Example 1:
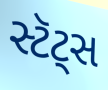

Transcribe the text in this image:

સ્ટૅટ્સ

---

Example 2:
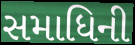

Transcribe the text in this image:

સમાધિની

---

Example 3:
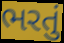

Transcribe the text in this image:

ભરતું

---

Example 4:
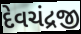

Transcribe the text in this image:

દેવચંદ્રજી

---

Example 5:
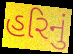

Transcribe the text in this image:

હરિનું